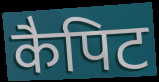
कैपिट